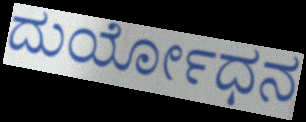
ದುರ್ಯೋಧನ